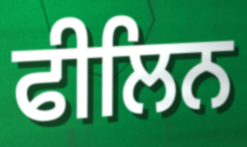
ਫੀਲਿਨ